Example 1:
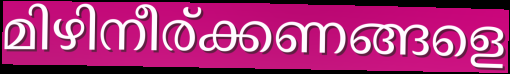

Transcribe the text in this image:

മിഴിനീര്ക്കണങ്ങളെ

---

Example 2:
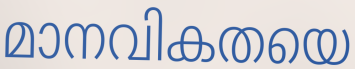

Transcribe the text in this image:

മാനവികതയെ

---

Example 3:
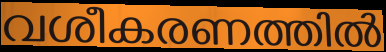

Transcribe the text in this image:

വശീകരണത്തിൽ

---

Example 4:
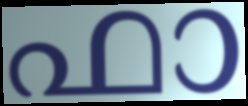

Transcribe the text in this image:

ഫാ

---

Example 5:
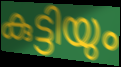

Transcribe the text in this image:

കുട്ടിയും